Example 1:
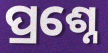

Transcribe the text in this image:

ପ୍ରଶ୍ନେ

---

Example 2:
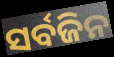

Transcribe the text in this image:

ସର୍ବଜିନ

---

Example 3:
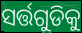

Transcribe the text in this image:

ସର୍ତ୍ତଗୁଡିକୁ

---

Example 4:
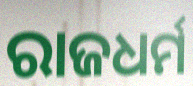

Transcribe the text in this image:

ରାଜଧର୍ମ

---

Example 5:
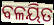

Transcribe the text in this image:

ବଳୟିତ